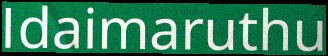
Idaimaruthu